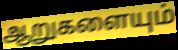
ஆறுகளையும்